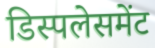
डिस्पलेसमेंट